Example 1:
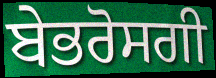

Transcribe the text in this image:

ਬੇਭਰੋਸਗੀ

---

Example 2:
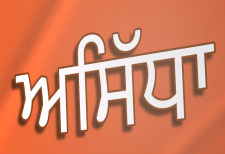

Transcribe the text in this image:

ਅਸਿੱਧਾ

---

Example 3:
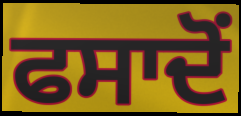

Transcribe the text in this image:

ਫਸਾਦੋਂ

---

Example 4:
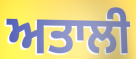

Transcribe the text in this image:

ਅਤਾਲੀ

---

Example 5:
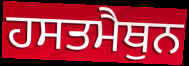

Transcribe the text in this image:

ਹਸਤਮੈਥੁਨ